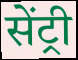
सेंट्री